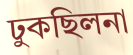
ঢুকছিলনা